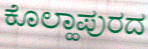
ಕೊಲ್ಹಾಪುರದ